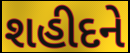
શહીદને